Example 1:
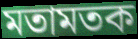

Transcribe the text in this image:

মতামতক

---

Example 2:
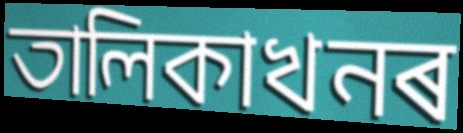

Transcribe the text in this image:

তালিকাখনৰ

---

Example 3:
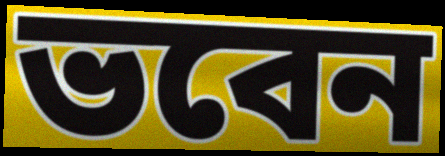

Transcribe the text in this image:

ভবেন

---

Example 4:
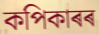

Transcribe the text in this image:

কপিকাৰৰ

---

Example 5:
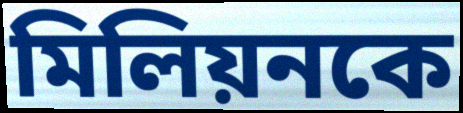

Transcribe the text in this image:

মিলিয়নকে